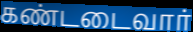
கண்டடைவார்